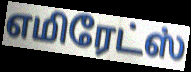
எமிரேட்ஸ்